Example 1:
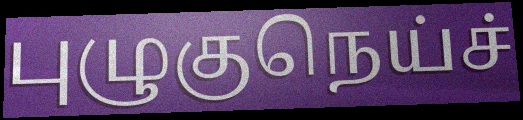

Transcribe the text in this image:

புழுகுநெய்ச்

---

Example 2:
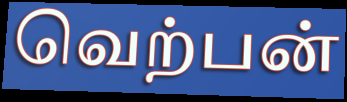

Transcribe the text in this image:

வெற்பன்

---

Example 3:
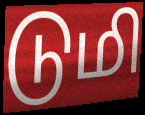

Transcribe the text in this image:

டுமி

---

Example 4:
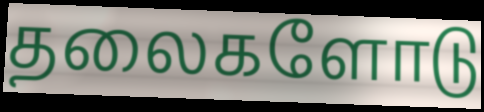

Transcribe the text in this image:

தலைகளோடு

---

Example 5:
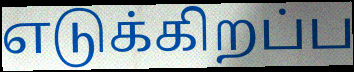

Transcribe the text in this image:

எடுக்கிறப்ப